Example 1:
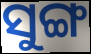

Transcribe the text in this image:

ସୁଙ୍ଗ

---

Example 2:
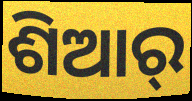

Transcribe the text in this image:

ଶିଆର୍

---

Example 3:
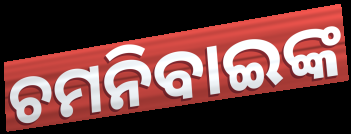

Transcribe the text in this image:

ଚମନିବାଇଙ୍କ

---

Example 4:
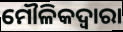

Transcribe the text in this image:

ମୌଳିକଦ୍ଵାରା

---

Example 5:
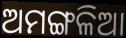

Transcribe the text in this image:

ଅମଙ୍ଗଳିଆ